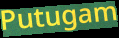
Putugam